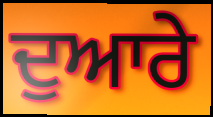
ਦੁਆਰੇ